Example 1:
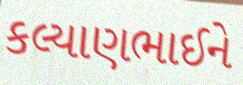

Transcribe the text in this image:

કલ્યાણભાઈને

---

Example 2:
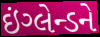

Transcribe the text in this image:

ઇંગ્લેન્ડને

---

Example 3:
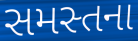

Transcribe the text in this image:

સમસ્તના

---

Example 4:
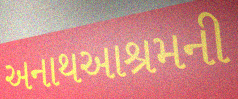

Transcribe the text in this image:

અનાથઆશ્રમની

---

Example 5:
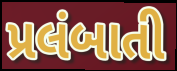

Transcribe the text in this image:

પ્રલંબાતી